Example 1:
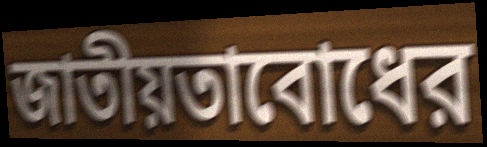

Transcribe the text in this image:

জাতীয়তাবোধের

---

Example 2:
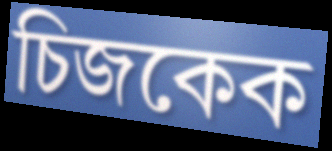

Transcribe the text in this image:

চিজকেক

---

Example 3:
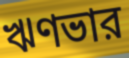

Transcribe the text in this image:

ঋণভার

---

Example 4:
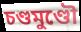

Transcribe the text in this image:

চণ্ডমুণ্ডৌ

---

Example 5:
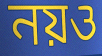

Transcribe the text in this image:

নয়ও